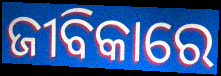
ଜୀବିକାରେ